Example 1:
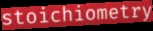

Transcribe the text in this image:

stoichiometry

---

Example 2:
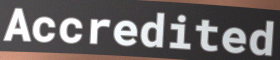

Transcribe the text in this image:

Accredited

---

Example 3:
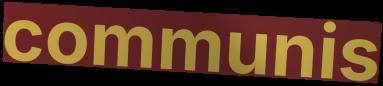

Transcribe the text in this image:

communis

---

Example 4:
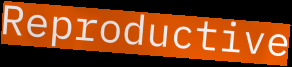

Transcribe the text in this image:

Reproductive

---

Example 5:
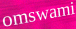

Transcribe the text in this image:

omswami